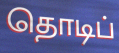
தொடிப்